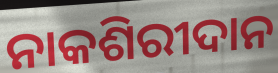
ନାକଶିରୀଦାନ